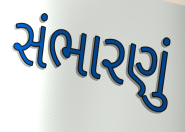
સંભારણું